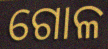
ଗୋଳ